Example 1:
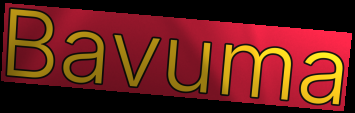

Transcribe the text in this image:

Bavuma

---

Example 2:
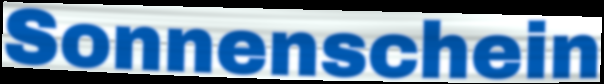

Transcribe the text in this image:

Sonnenschein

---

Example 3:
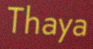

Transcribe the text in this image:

Thaya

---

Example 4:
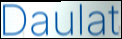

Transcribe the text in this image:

Daulat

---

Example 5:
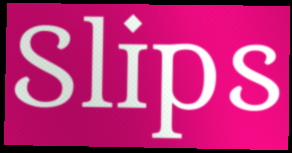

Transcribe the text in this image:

Slips